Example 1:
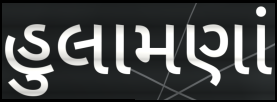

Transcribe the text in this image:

હુલામણાં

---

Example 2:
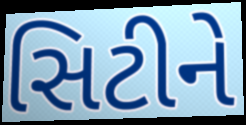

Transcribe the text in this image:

સિટીને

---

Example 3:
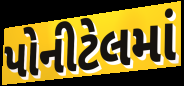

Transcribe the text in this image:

પોનીટેલમાં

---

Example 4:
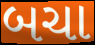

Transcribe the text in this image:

બચા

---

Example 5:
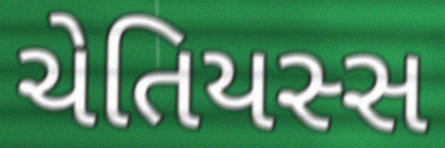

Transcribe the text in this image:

ચેતિયસ્સ